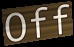
Off